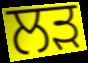
ਲੜ